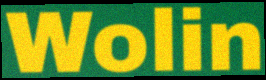
Wolin